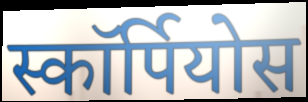
स्कॉर्पियोस